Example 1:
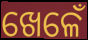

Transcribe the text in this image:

ଖେଳେଁ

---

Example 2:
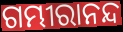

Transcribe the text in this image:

ଗମ୍ଭୀରାନନ୍ଦ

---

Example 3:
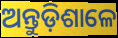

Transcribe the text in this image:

ଅନ୍ତୁଡ଼ିଶାଳେ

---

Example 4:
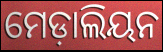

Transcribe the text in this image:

ମେଡ଼ାଲିୟନ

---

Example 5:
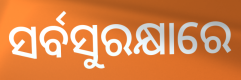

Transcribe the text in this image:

ସର୍ବସୁରକ୍ଷାରେ